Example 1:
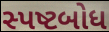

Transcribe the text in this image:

સ્પષ્ટબોધ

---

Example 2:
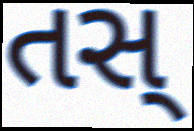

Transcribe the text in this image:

તસ્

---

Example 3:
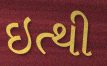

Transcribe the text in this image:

ઇત્થી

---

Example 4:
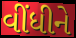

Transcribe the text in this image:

વીંધીને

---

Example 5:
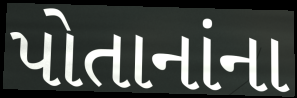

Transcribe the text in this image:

પોતાનાંના